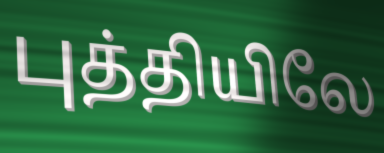
புத்தியிலே